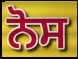
ਨੋਸ